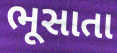
ભૂસાતા